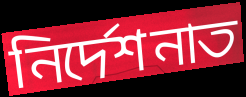
নিৰ্দেশনাত